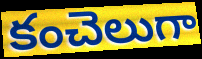
కంచెలుగా